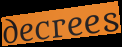
decrees